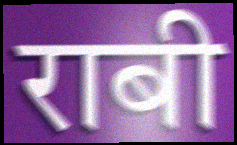
राबी